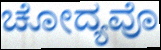
ಚೋದ್ಯವೊ